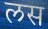
लस